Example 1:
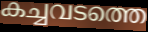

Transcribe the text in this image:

കച്ചവടത്തെ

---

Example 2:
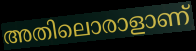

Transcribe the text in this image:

അതിലൊരാളാണ്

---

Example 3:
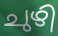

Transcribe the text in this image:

ചുഴി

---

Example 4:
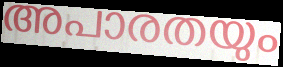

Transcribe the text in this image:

അപാരതയും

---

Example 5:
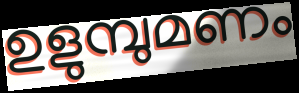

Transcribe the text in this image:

ഉളുമ്പുമണം